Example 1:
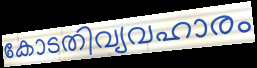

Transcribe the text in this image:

കോടതിവ്യവഹാരം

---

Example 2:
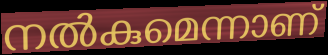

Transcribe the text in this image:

നൽകുമെന്നാണ്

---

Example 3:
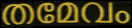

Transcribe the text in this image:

തമേവം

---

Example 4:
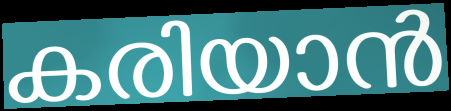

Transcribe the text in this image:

കരിയാൻ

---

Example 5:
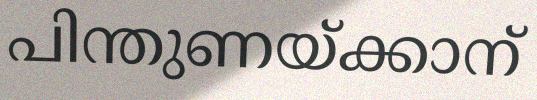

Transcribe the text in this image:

പിന്തുണയ്ക്കാന്